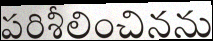
పరిశీలించినను